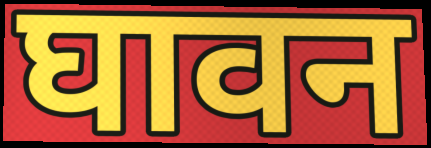
घावन